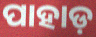
ପାହାଡ଼